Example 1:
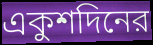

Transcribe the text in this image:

একুশদিনের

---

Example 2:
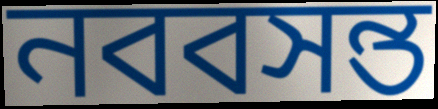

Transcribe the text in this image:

নববসন্ত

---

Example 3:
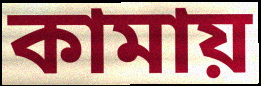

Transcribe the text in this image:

কামায়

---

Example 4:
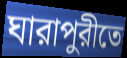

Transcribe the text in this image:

ঘারাপুরীতে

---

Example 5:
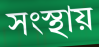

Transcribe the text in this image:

সংস্থায়